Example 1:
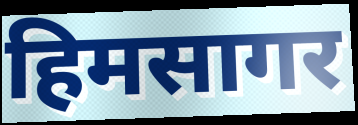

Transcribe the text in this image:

हिमसागर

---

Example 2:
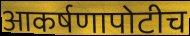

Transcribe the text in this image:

आकर्षणापोटीच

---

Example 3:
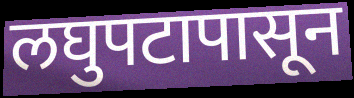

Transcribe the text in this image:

लघुपटापासून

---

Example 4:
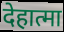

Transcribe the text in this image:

देहात्मा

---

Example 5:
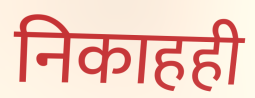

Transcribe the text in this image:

निकाहही